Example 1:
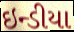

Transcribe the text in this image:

ઇન્ડીયા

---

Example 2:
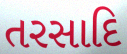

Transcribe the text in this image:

તરસાદિ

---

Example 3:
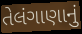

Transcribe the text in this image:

તેલંગાણાનું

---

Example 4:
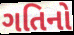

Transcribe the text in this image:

ગતિનો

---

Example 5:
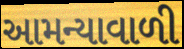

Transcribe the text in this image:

આમન્યાવાળી